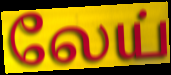
லேய்